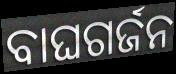
ବାଘଗର୍ଜନ